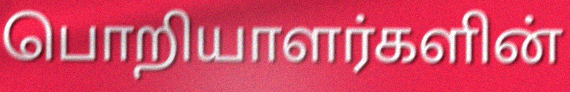
பொறியாளர்களின்